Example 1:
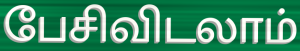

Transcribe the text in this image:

பேசிவிடலாம்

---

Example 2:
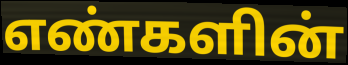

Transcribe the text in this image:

எண்களின்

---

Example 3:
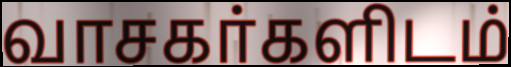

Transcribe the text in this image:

வாசகர்களிடம்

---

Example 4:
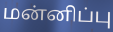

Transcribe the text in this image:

மன்னிப்பு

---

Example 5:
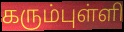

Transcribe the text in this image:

கரும்புள்ளி